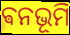
ଵନଭୂମି